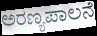
ಅರಣ್ಯಪಾಲನೆ